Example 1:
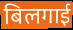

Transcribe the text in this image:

बिलगाई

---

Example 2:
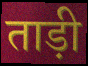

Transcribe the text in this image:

ताड़ी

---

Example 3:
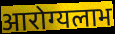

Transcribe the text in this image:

आरोग्यलाभ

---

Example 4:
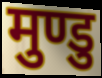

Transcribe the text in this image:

मुण्डु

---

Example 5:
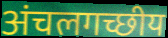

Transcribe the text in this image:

अंचलगच्छीय